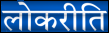
लोकरीति